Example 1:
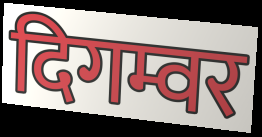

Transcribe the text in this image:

दिगम्वर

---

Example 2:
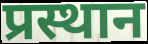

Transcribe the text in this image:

प्रस्थान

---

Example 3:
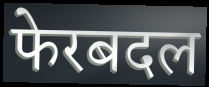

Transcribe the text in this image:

फेरबदल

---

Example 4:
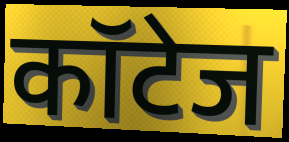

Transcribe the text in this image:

कॉटेज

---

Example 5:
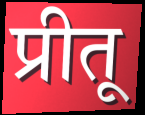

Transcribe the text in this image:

प्रीतू